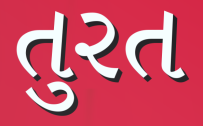
તુરત